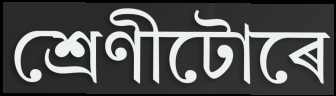
শ্ৰেণীটোৰে